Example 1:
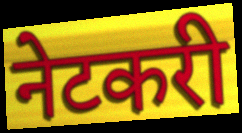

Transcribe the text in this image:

नेटकरी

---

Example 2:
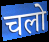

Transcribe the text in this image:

चलो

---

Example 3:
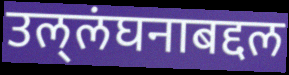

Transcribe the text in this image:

उल्लंघनाबद्दल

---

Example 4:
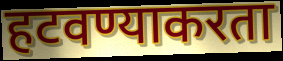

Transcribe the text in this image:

हटवण्याकरता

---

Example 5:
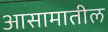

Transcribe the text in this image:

आसामातील